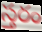
స్తరం